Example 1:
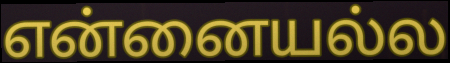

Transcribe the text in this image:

என்னையல்ல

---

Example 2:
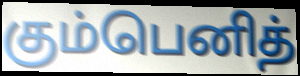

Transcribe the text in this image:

கும்பெனித்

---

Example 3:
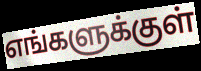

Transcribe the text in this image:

எங்களுக்குள்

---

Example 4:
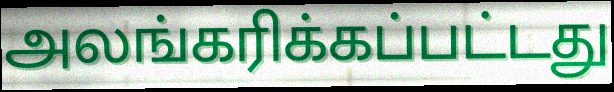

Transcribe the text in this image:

அலங்கரிக்கப்பட்டது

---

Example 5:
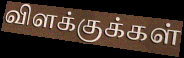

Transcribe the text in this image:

விளக்குக்கள்